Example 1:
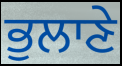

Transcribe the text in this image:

ਭੁਲਾਣੇ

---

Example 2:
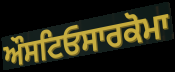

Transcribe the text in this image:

ਔਸਟਿਓਸਾਰਕੋਮਾ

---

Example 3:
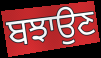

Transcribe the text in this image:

ਬਝਾਉਣ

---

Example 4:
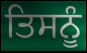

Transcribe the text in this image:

ਤਿਸਨੂੰ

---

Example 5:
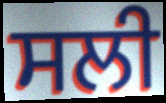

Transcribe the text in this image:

ਸਲੀ